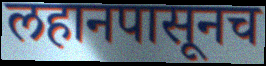
लहानपासूनच